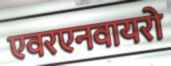
एवरएनवायरो